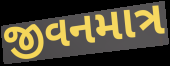
જીવનમાત્ર